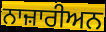
ਨਾਜ਼ਾਰੀਅਨ